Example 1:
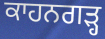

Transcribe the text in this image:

ਕਾਹਨਗੜ੍ਹ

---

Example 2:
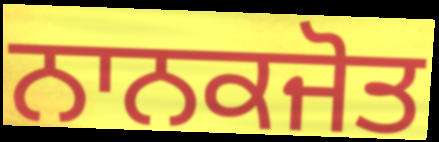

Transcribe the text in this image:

ਨਾਨਕਜੋਤ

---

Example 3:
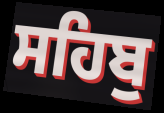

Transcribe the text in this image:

ਸਹਿਬੁ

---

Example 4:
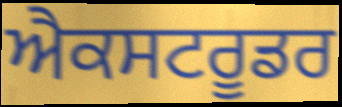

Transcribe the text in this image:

ਐਕਸਟਰੂਡਰ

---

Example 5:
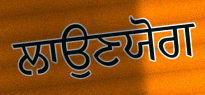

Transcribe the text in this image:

ਲਾਉਣਯੋਗ